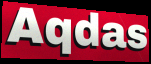
Aqdas